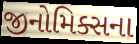
જીનોમિક્સના